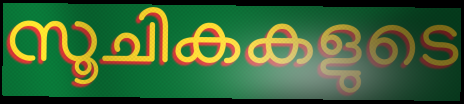
സൂചികകളുടെ